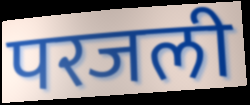
परजली